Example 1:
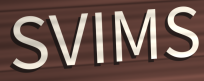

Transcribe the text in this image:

SVIMS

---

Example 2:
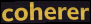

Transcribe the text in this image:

coherer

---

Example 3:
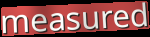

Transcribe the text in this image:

measured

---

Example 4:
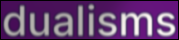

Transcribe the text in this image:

dualisms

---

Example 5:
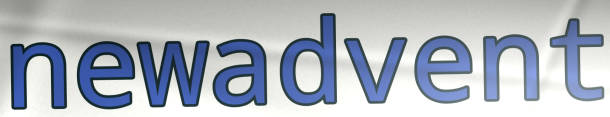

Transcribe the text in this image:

newadvent